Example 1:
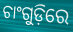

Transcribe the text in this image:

ଚାଂଗୁଡ଼ିରେ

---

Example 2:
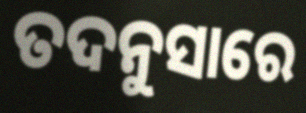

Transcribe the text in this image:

ତଦନୁସାରେ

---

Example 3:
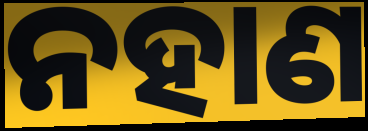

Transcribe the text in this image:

ନହାଣ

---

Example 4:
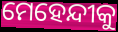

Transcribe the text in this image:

ମେହେନ୍ଦୀକୁ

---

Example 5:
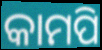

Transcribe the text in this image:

କାମପି